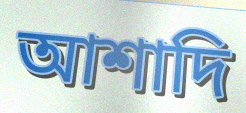
আশাদি